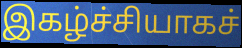
இகழ்ச்சியாகச்